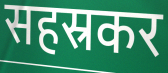
सहस्रकर